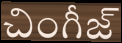
చింగీజ్